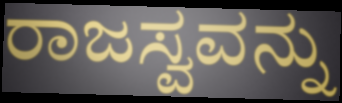
ರಾಜಸ್ವವನ್ನು